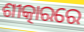
ଶୀତ୍କାରରେ